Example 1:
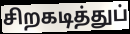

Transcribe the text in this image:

சிறகடித்துப்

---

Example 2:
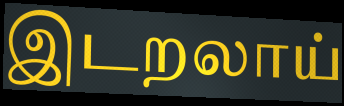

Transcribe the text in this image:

இடறலாய்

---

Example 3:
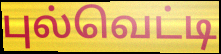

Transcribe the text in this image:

புல்வெட்டி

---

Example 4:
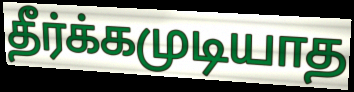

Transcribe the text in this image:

தீர்க்கமுடியாத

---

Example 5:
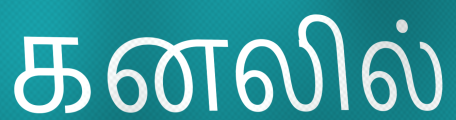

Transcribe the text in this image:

கனலில்